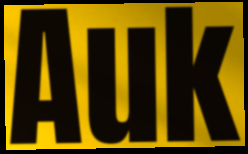
Auk